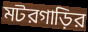
মটরগাড়ির